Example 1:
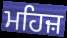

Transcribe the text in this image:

ਮਹਿਜ਼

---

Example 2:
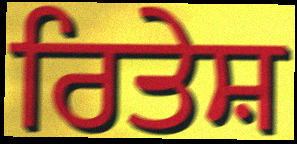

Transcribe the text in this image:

ਰਿਤੇਸ਼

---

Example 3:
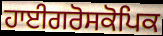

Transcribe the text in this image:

ਹਾਈਗਰੋਸਕੋਪਿਕ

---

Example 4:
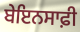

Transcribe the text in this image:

ਬੇਇਨਸਾਫ਼ੀ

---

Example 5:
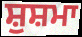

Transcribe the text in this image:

ਸ਼ੁਸ਼ਮਾ